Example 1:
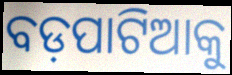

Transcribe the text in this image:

ବଡ଼ପାଟିଆକୁ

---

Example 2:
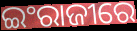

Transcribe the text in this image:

ଇଂରାଜୀରେ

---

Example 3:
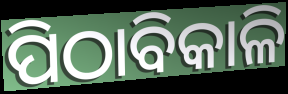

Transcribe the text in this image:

ପିଠାବିକାଳି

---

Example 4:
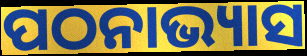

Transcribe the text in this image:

ପଠନାଭ୍ୟାସ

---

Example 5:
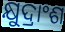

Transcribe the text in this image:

କ୍ଷୁଦ୍ରାଂଶ